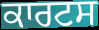
ਕਾਰਟਸ